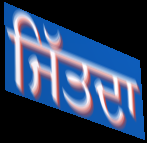
ਜਿੱਤਦਾ